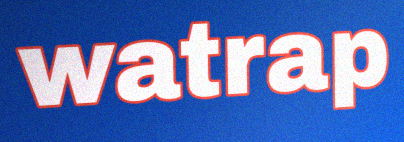
watrap